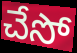
చేసో